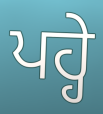
ਪਹ੍ਹੇ